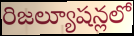
రిజల్యూషన్లలో